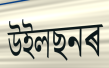
উইলছনৰ